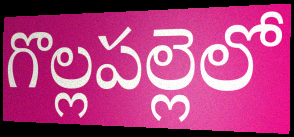
గొల్లపల్లెలో